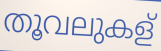
തൂവലുകള്